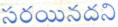
సరయినదని